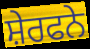
ਸ਼ੇਰਫਨੇ